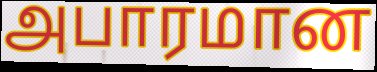
அபாரமான